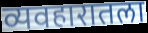
व्यवहारातला